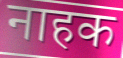
नाहक